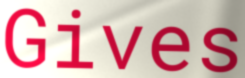
Gives